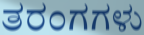
ತರಂಗಗಳು